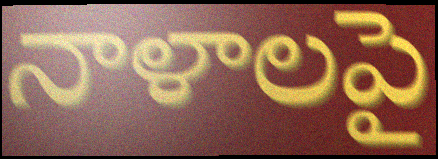
నాళాలపై